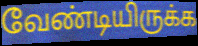
வேண்டியிருக்க